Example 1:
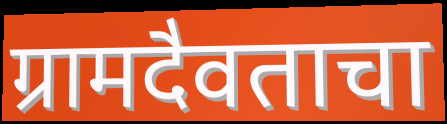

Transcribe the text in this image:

ग्रामदैवताचा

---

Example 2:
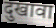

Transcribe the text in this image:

दुखावा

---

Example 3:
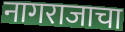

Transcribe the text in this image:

नागराजाचा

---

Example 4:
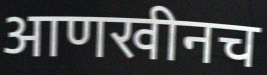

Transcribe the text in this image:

आणखीनच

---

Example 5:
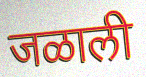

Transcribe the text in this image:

जळाली